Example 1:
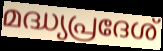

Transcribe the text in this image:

മദ്ധ്യപ്രദേശ്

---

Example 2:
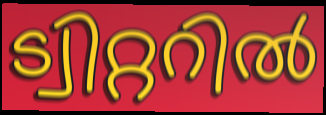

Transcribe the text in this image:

ട്വിറ്ററിൽ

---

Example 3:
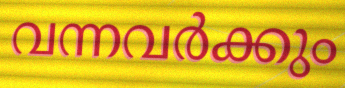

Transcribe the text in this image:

വന്നവർക്കും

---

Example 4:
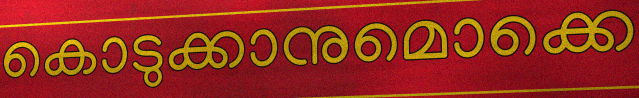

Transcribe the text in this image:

കൊടുക്കാനുമൊക്കെ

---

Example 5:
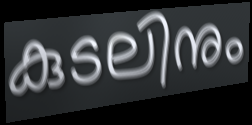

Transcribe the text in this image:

കുടലിനും